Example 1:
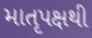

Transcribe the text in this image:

માતૃપક્ષથી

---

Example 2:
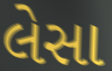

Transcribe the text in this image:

લેસા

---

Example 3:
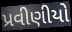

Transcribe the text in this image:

પ્રવીણીયો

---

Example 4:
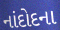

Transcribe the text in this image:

નાંદોદના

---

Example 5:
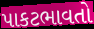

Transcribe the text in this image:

પાકટભાવતો